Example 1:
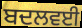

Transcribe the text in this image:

ਬਦਲਵਈ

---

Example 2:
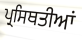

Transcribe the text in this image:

ਪ੍ਰਸਿਥਤੀਆਂ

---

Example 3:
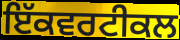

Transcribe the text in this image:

ਇੱਕਵਰਟੀਕਲ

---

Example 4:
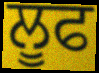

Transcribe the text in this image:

ਲੂਫ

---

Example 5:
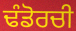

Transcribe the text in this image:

ਢੰਡੋਰਚੀ